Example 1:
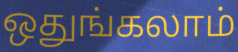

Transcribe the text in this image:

ஒதுங்கலாம்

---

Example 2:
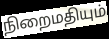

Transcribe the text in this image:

நிறைமதியும்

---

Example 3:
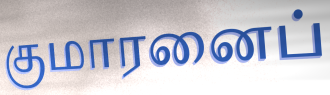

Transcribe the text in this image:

குமாரனைப்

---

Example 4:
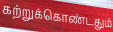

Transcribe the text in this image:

கற்றுக்கொண்டதும்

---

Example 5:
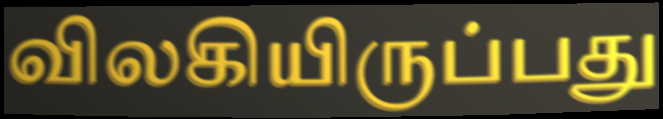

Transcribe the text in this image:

விலகியிருப்பது